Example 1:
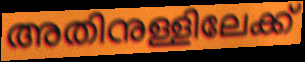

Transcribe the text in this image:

അതിനുള്ളിലേക്ക്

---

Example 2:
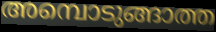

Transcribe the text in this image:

അമ്പൊടുങ്ങാത്ത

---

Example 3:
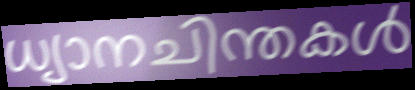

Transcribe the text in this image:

ധ്യാനചിന്തകൾ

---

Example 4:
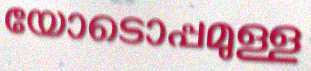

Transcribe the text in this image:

യോടൊപ്പമുള്ള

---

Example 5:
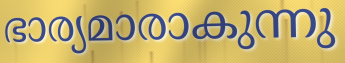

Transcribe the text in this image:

ഭാര്യമാരാകുന്നു